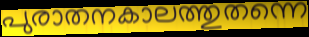
പുരാതനകാലത്തുതന്നെ